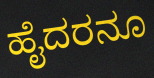
ಹೈದರನೂ